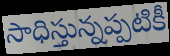
సాధిస్తున్నప్పటికీ